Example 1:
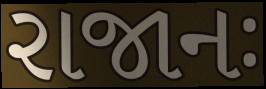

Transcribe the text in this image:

રાજાનઃ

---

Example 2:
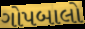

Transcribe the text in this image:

ગોપબાલો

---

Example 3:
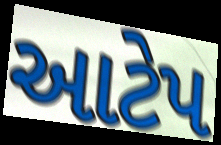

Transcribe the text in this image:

આટેપ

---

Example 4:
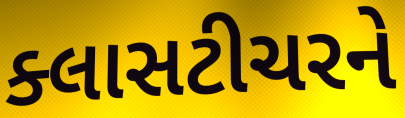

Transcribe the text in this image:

ક્લાસટીચરને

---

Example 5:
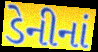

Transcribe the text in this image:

ડેનીનાં